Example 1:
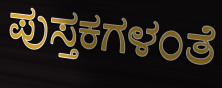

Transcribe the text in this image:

ಪುಸ್ತಕಗಳಂತೆ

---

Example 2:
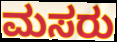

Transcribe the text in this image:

ಮಸರು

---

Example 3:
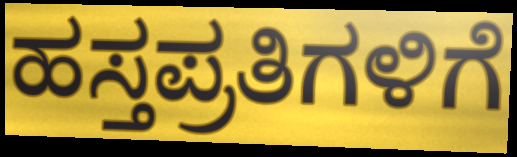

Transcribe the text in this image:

ಹಸ್ತಪ್ರತಿಗಳಿಗೆ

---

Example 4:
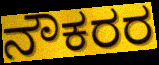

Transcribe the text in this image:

ನೌಕರರ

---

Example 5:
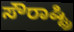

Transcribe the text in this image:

ಸೌರಾಷ್ಟ್ರಿ